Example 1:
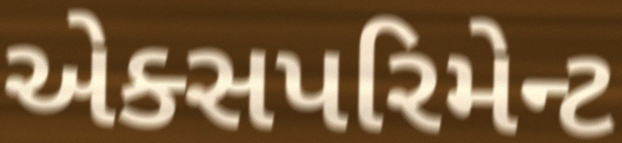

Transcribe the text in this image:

એક્સપરિમેન્ટ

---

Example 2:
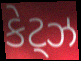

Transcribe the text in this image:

કેટ્ઝ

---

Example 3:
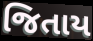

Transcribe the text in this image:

જિતાય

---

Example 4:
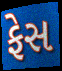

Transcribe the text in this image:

ફેસ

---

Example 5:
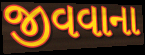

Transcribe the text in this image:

જીવવાના